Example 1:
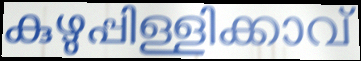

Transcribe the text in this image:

കുഴുപ്പിള്ളിക്കാവ്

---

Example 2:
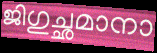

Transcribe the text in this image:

ജിഗുച്ഛമാനാ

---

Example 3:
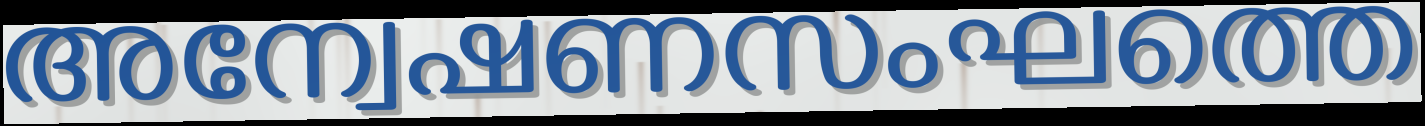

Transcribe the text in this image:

അന്വേഷണസംഘത്തെ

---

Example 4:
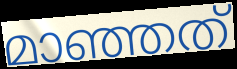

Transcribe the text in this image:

മാഞ്ഞത്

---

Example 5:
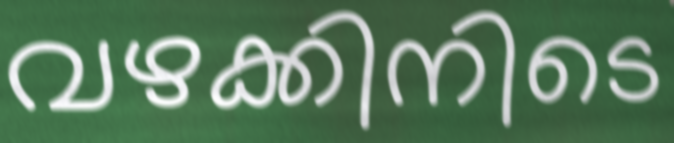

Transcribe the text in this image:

വഴക്കിനിടെ